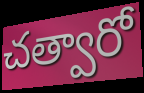
చత్వారో